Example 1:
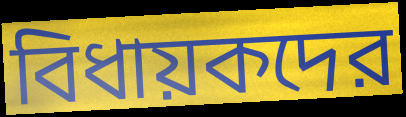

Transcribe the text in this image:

বিধায়কদের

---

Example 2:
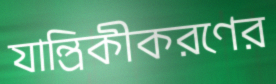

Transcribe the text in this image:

যান্ত্রিকীকরণের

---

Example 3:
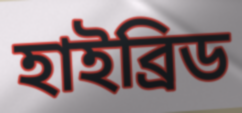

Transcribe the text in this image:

হাইব্রিড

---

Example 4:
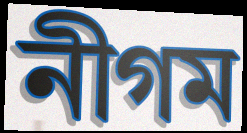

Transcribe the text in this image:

নীগম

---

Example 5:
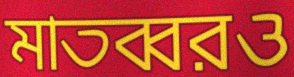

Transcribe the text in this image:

মাতব্বরও